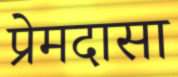
प्रेमदासा